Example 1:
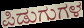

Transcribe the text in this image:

ಪಿಡುಗುಗಳ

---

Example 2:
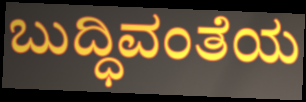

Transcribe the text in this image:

ಬುದ್ಧಿವಂತೆಯ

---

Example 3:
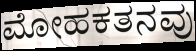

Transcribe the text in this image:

ಮೋಹಕತನವು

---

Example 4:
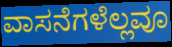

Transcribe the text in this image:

ವಾಸನೆಗಳೆಲ್ಲವೂ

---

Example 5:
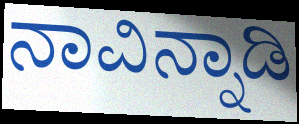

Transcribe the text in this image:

ನಾವಿನ್ನಾಡಿ